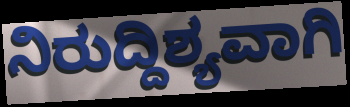
ನಿರುದ್ದಿಶ್ಯವಾಗಿ